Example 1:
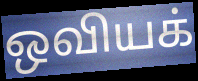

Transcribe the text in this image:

ஒவியக்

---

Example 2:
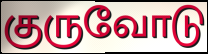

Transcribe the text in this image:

குருவோடு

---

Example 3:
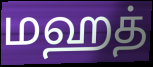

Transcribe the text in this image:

மஹத்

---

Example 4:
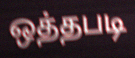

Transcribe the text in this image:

ஒத்தபடி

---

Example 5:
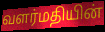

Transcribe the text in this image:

வளர்மதியின்